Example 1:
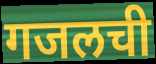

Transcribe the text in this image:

गजलची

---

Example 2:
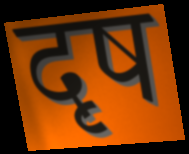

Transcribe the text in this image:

दृष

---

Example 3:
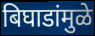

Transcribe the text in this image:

बिघाडांमुळे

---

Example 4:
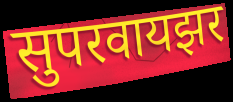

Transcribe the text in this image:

सुपरवायझर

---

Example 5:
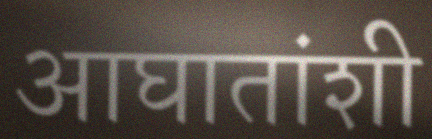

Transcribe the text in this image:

आघातांशी